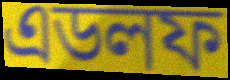
এডলফ